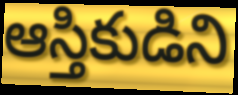
ఆస్తికుడిని